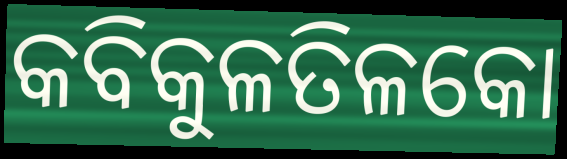
କବିକୁଳତିଳକୋ